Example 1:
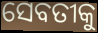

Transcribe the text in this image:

ସେବତୀକୁ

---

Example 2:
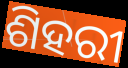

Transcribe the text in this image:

ଶିହରୀ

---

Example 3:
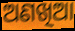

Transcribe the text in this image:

ଅଣଖିଆ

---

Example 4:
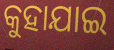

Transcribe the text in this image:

କୁହାଯାଇ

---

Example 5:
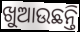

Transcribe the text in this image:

ଖୁଆଉଛନ୍ତି